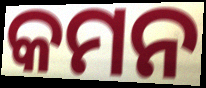
କମନ